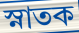
স্নাতক